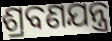
ଶ୍ରବଣଯନ୍ତ୍ର